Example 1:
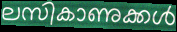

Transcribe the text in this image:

ലസികാണുക്കൾ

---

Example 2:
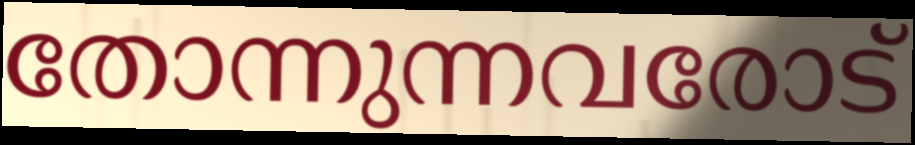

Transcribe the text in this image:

തോന്നുന്നവരോട്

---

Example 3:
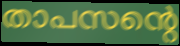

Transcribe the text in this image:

താപസന്റെ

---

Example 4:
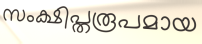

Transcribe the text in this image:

സംക്ഷിപ്തരൂപമായ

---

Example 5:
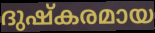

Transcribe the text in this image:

ദുഷ്കരമായ